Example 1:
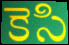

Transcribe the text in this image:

కెసి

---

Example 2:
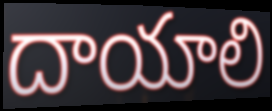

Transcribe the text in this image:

దాయాలి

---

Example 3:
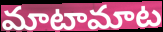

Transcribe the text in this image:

మాటామాట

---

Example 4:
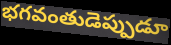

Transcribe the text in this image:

భగవంతుడెప్పుడూ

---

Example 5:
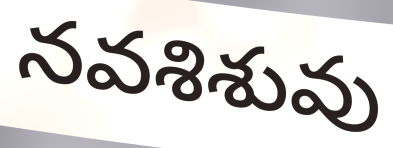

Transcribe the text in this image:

నవశిశువు